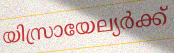
യിസ്രായേല്യർക്ക്